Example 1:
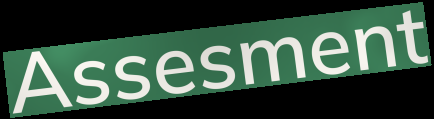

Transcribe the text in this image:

Assesment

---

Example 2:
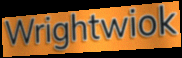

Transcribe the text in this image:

Wrightwiok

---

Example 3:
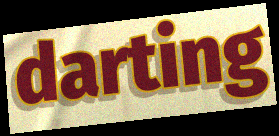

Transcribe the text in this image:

darting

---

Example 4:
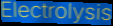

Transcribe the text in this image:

Electrolysis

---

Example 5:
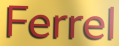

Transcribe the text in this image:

Ferrel